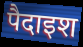
पैदाइश